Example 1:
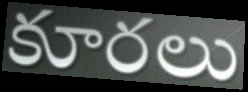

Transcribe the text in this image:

కూరలు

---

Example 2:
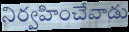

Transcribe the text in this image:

నిర్వహించేవాడు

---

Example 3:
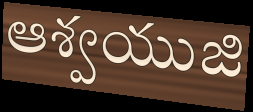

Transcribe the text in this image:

ఆశ్వయుజి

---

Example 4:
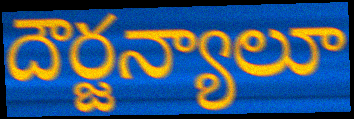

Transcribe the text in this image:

దౌర్జన్యాలూ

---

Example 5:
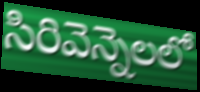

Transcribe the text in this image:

సిరివెన్నెలలో